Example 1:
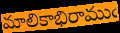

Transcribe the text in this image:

మాలికాభిరాముఁ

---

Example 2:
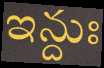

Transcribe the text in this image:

ఇన్దుః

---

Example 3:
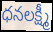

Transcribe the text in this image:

ధనలక్ష్మీ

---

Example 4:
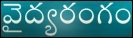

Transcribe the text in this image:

వైద్యరంగం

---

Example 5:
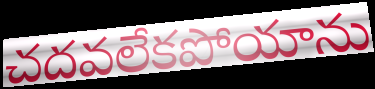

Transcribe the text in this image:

చదవలేకపోయాను